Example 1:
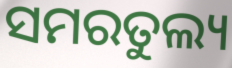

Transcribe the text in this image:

ସମରତୁଲ୍ୟ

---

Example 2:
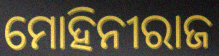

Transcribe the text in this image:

ମୋହିନୀରାଜ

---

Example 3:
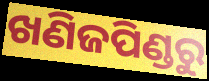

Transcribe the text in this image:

ଖଣିଜପିଣ୍ଡରୁ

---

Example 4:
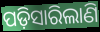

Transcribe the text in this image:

ପଡ଼ିସାରିଲାଣି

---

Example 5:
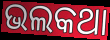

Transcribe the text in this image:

ଭଲକଥା